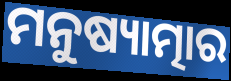
ମନୁଷ୍ୟାତ୍ମାର